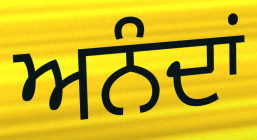
ਅਨੰਦਾਂ